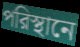
পরিস্থানে